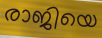
രാജിയെ